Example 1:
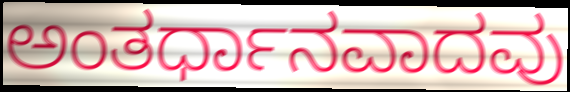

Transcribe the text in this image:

ಅಂತರ್ಧಾನವಾದವು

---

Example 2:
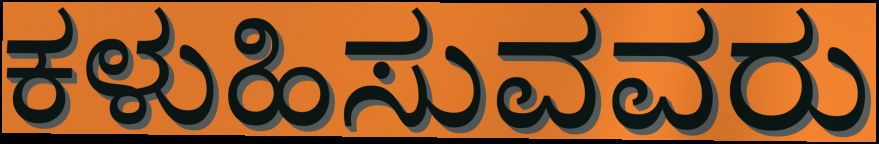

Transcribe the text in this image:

ಕಳುಹಿಸುವವರು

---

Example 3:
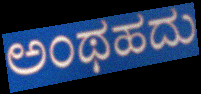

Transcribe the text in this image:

ಅಂಥಹದು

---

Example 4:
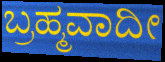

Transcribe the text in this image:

ಬ್ರಹ್ಮವಾದೀ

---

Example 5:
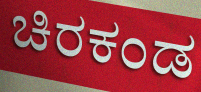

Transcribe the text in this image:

ಚಿರಕಂಡ